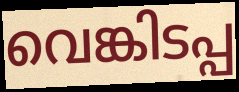
വെങ്കിടപ്പ